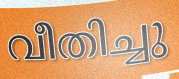
വീതിച്ചു